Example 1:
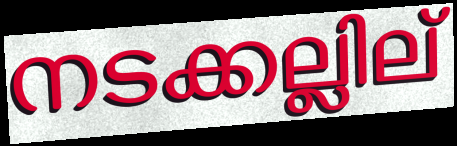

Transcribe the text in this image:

നടക്കല്ലില്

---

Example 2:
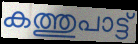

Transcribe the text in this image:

കത്തുപാട്ട്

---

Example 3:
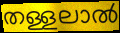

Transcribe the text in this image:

തള്ളലാൽ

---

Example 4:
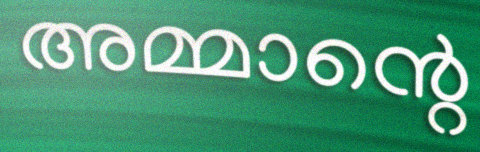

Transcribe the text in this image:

അമ്മാന്റെ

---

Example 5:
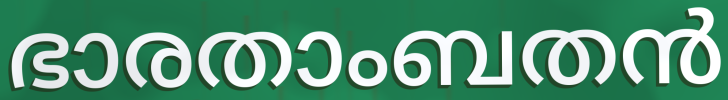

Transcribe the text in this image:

ഭാരതാംബതൻ